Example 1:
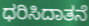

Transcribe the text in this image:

ಧರಿಸಿದಾತನೆ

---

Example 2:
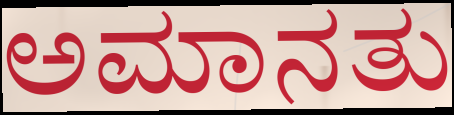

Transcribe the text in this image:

ಅಮಾನತು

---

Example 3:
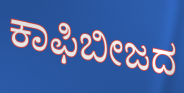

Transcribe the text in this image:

ಕಾಫಿಬೀಜದ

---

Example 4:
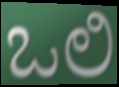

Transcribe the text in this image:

ಒಲಿ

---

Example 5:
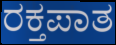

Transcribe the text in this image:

ರಕ್ತಪಾತ